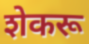
शेकरू